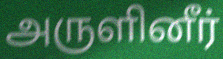
அருளினீர்